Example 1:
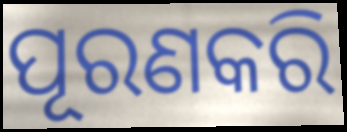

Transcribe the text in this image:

ପୂରଣକରି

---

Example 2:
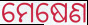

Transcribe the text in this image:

ମେଷେଣ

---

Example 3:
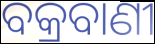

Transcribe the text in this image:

ବକ୍ରବାଣୀ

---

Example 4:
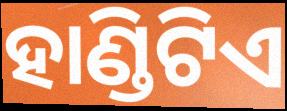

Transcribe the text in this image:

ହାଣ୍ଡିଟିଏ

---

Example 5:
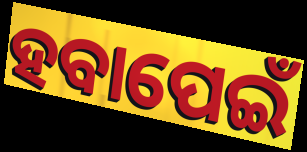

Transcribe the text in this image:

ହବାପେଇଁ